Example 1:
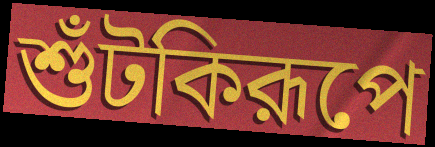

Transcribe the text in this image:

শুঁটকিরূপে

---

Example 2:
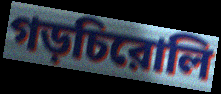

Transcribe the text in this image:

গড়চিরোলি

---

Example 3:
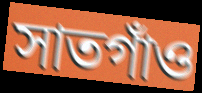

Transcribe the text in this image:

সাতগাঁও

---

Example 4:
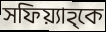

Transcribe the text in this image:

সফিয়্যাহ্কে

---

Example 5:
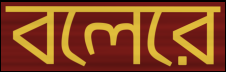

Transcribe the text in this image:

বলেরে